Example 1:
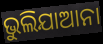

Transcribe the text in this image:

ଭୁଲିଯାଆନା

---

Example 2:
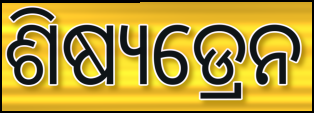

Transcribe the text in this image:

ଶିଷ୍ୟଡ୍ରେନ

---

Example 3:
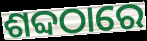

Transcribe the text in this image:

ଶବ୍ଦଠାରେ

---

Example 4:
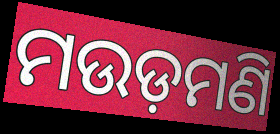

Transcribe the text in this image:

ମଉଡ଼ମଣି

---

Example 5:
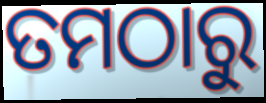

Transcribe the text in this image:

ତମଠାରୁ